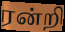
ரன்றி